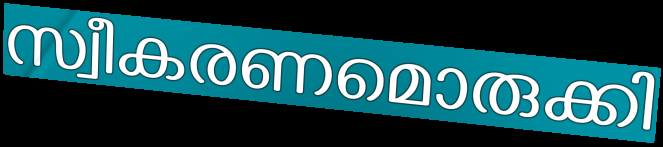
സ്വീകരണമൊരുക്കി